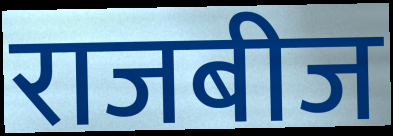
राजबीज